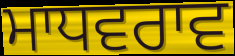
ਮਾਧਵਰਾਵ